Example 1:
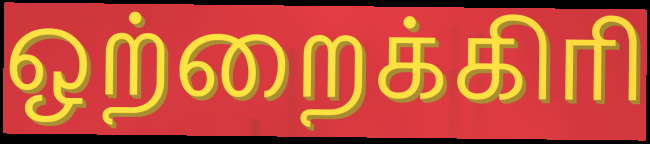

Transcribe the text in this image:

ஒற்றைக்கிரி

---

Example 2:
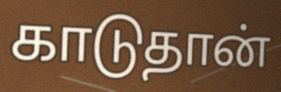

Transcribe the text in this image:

காடுதான்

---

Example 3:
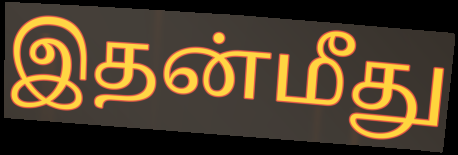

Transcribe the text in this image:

இதன்மீது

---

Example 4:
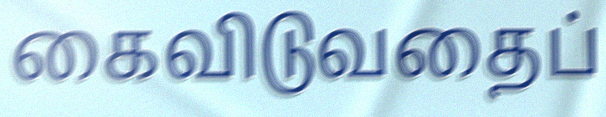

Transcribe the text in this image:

கைவிடுவதைப்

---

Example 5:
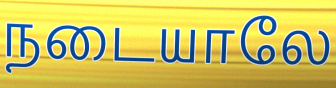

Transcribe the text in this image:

நடையாலே